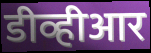
डीव्हीआर